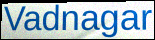
Vadnagar